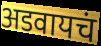
अडवायचं